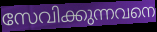
സേവിക്കുന്നവനെ